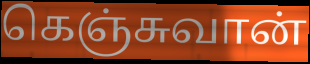
கெஞ்சுவான்